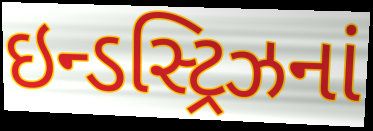
ઇન્ડસ્ટ્રિઝનાં